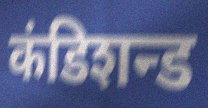
कंडिशन्ड